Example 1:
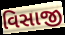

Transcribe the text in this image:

વિસાજી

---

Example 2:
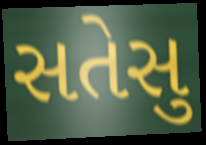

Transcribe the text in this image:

સતેસુ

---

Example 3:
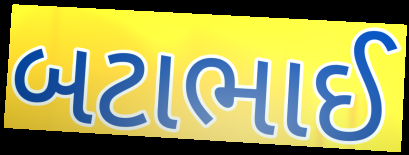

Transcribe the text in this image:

બટાભાઈ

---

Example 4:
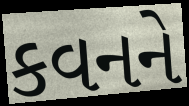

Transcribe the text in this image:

કવનને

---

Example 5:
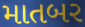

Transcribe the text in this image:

માતબર